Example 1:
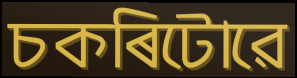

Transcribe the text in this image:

চকৰিটোৱে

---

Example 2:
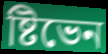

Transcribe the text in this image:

ষ্টিভেন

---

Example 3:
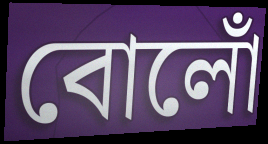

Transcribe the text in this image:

বোলোঁ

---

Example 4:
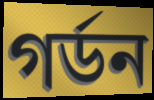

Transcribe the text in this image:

গৰ্ডন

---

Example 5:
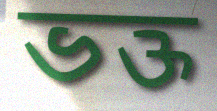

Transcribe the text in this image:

ভক্ত